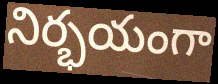
నిర్భయంగా